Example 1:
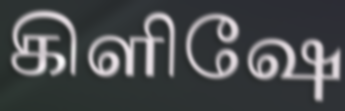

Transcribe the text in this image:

கிளிஷே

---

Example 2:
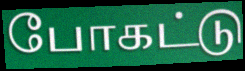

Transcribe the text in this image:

போகட்டு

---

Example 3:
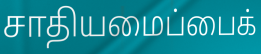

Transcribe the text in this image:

சாதியமைப்பைக்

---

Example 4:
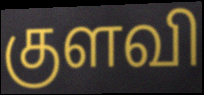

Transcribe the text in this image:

குளவி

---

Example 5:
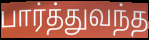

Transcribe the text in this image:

பார்த்துவந்த